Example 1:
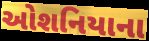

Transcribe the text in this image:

ઓશનિયાના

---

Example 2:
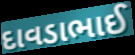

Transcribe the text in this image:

દાવડાભાઈ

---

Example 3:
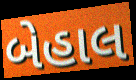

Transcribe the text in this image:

બેહાલ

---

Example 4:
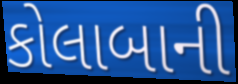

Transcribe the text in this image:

કોલાબાની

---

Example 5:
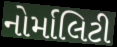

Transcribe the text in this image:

નોર્માલિટી